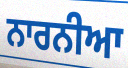
ਨਾਰਨੀਆ